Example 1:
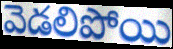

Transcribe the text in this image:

వెడలిపోయి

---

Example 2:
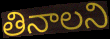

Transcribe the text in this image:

తినాలని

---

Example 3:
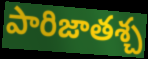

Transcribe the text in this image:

పారిజాతశ్చ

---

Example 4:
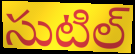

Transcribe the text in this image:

సుటిల్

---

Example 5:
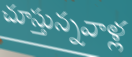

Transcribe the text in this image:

చూస్తున్నవాళ్ల